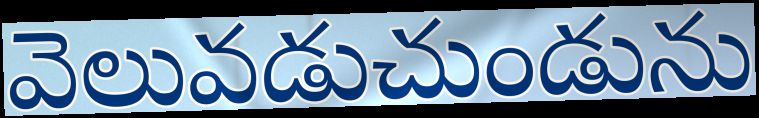
వెలువడుచుండును